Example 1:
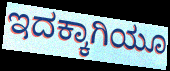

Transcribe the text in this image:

ಇದಕ್ಕಾಗಿಯೂ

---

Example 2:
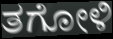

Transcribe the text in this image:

ತಗೋಳಿ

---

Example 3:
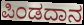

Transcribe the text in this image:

ಪಿಂಡದಾನ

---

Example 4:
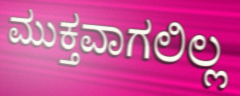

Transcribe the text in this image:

ಮುಕ್ತವಾಗಲಿಲ್ಲ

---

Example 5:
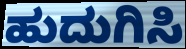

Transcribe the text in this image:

ಹುದುಗಿಸಿ